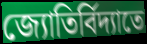
জ্যোতির্বিদ্যাতে